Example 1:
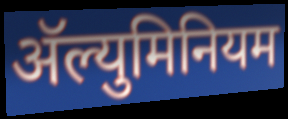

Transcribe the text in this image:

ॲल्युमिनियम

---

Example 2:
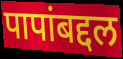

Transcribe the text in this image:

पापांबद्दल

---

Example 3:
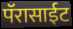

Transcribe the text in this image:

पॅरासाईट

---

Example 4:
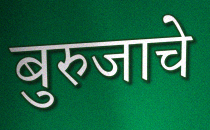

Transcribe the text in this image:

बुरुजाचे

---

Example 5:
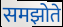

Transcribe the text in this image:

समझोते